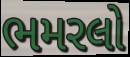
ભમરલો